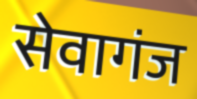
सेवागंज